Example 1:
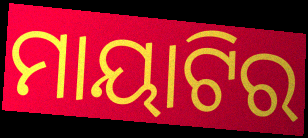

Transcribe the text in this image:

ମାୟାଟିର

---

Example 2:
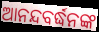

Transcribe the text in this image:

ଆନନ୍ଦବର୍ଦ୍ଧନଙ୍କ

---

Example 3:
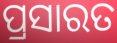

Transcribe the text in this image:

ପ୍ରସାରତ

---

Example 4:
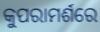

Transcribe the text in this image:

କୁପରାମର୍ଶରେ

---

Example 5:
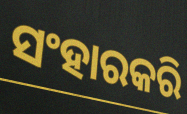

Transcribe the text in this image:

ସଂହାରକରି